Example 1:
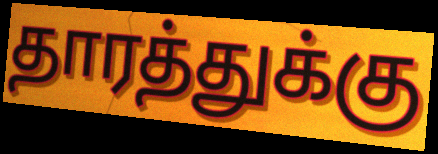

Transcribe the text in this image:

தாரத்துக்கு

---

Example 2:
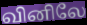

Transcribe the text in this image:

வினிலே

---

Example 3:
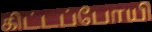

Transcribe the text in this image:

கிட்டப்போயி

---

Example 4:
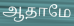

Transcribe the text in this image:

ஆதாமே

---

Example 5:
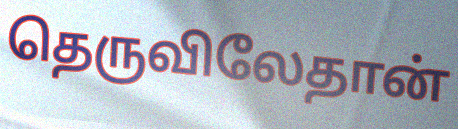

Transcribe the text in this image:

தெருவிலேதான்